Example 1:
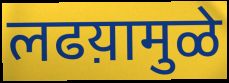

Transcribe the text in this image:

लढय़ामुळे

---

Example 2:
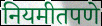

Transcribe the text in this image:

नियमीतपणे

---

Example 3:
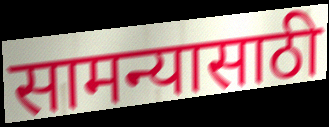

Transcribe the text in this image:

सामन्यासाठी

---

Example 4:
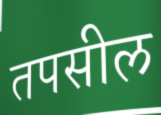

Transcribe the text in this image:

तपसील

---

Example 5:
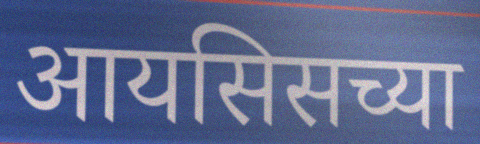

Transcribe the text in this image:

आयसिसच्या